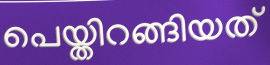
പെയ്തിറങ്ങിയത്